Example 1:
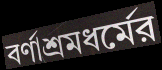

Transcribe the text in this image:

বর্ণাশ্রমধর্মের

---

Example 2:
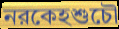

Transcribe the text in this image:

নরকেহশুচৌ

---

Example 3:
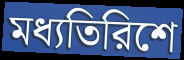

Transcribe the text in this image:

মধ্যতিরিশে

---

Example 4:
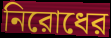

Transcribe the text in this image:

নিরোধের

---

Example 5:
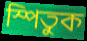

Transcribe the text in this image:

স্পিতুক